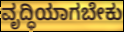
ವೃದ್ಧಿಯಾಗಬೇಕು